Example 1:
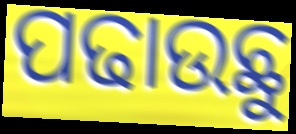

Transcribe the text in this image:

ପଢାଉଛୁ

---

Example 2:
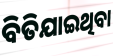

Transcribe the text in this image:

ବିତିଯାଇଥିବା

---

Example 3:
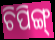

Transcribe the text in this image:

ଚିପିଙ୍ଗ୍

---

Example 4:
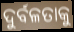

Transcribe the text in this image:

ଦୁର୍ବଳତାକୁ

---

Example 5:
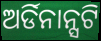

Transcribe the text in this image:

ଅର୍ଡିନାନ୍ସଟି